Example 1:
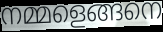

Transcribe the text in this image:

നമ്മളെങ്ങനെ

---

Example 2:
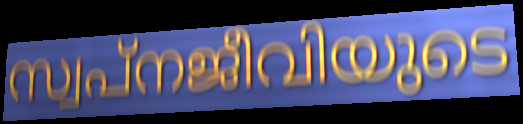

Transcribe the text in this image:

സ്വപ്നജീവിയുടെ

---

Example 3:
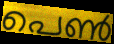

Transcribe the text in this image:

പെൺ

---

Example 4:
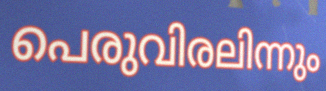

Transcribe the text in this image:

പെരുവിരലിന്നും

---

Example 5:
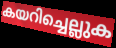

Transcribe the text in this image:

കയറിച്ചെല്ലുക